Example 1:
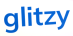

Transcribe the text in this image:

glitzy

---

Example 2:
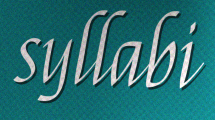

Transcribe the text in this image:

syllabi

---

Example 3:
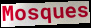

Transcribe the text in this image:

Mosques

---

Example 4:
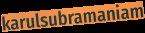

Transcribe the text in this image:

karulsubramaniam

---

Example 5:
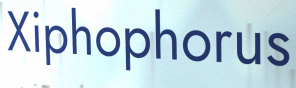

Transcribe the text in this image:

Xiphophorus